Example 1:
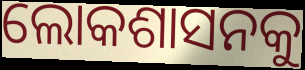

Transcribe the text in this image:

ଲୋକଶାସନକୁ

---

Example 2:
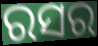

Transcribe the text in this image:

ରସର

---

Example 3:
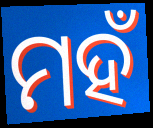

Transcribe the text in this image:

ମହଁ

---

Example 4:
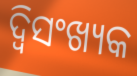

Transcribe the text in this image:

ଦ୍ୱିସଂଖ୍ୟକ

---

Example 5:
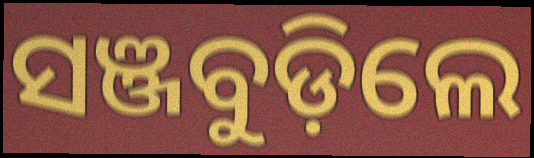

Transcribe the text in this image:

ସଞ୍ଜବୁଡ଼ିଲେ